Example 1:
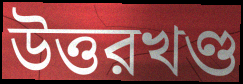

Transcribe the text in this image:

উত্তরখণ্ড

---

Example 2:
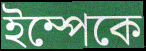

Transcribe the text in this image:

ইম্পেকে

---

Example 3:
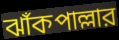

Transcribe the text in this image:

ঝাঁকপাল্লার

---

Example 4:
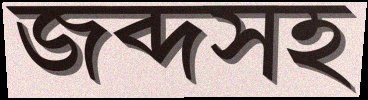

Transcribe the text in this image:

জব্দসহ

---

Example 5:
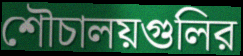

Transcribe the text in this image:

শৌচালয়গুলির